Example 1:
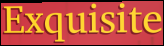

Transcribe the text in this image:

Exquisite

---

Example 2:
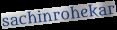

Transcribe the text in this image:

sachinrohekar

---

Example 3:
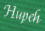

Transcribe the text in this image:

Hupeh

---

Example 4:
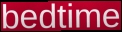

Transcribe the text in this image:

bedtime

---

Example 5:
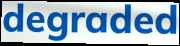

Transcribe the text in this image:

degraded